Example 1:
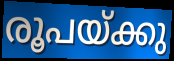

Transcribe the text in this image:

രൂപയ്ക്കു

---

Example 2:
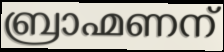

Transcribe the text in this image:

ബ്രാഹ്മണന്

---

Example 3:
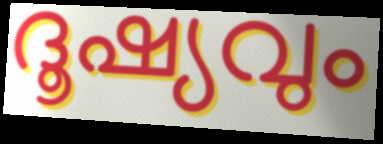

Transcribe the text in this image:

ദൂഷ്യവും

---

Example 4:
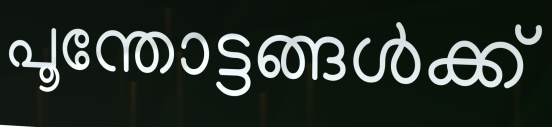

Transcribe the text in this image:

പൂന്തോട്ടങ്ങൾക്ക്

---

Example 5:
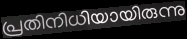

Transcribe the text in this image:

പ്രതിനിധിയായിരുന്നു